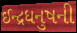
ઈન્દ્રધનુષની